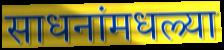
साधनांमधल्या